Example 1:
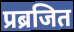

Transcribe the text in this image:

प्रब्रजित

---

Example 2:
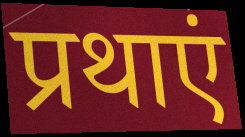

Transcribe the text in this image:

प्रथाएं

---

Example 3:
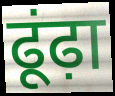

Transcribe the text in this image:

ढूंढ़ा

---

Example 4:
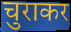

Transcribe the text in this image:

चुराकर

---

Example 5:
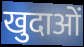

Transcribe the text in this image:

खुदाओं